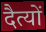
दैत्यों